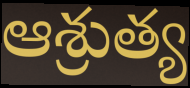
ఆశ్రుత్య